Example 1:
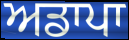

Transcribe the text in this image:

ਅਡਾਪਾ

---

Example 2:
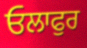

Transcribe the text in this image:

ਓਲਾਫੁਰ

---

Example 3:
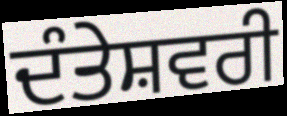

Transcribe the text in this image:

ਦੰਤੇਸ਼ਵਰੀ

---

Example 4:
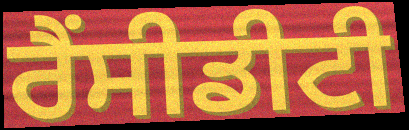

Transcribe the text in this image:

ਰੈਂਸੀਡੀਟੀ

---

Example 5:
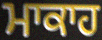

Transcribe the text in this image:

ਮਾਕਾਹ